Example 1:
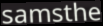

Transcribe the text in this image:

samsthe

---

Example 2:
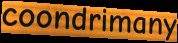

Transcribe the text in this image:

coondrimany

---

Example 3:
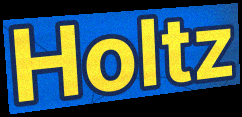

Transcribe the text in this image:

Holtz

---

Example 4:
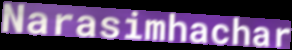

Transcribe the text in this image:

Narasimhachar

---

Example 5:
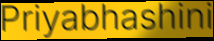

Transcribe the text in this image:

Priyabhashini